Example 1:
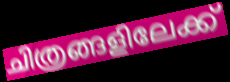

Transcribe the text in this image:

ചിത്രങ്ങളിലേക്ക്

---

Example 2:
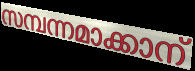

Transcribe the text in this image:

സമ്പന്നമാക്കാന്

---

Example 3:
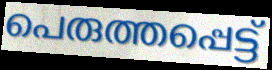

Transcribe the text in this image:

പെരുത്തപ്പെട്ട്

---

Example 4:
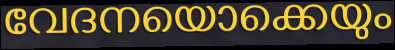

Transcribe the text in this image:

വേദനയൊക്കെയും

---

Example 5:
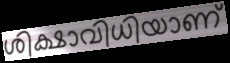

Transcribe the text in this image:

ശിക്ഷാവിധിയാണ്